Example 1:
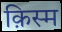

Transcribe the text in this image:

क़िस्‍म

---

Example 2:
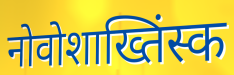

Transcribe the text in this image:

नोवोशाख्तिंस्क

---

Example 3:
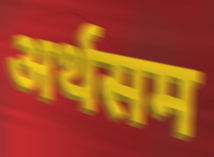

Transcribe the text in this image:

अर्थसम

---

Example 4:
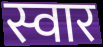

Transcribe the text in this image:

स्‍वार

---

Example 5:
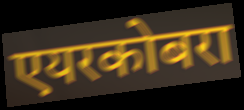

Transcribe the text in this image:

एयरकोबरा